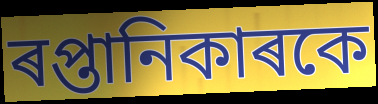
ৰপ্তানিকাৰকে